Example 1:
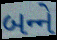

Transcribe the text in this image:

બન્‍ને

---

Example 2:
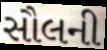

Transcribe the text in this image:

સૌલની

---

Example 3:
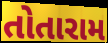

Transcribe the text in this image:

તોતારામ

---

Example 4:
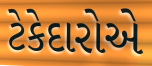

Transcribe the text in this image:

ટેકેદારોએ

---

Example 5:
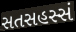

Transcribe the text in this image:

સતસહસ્સં